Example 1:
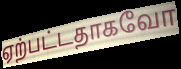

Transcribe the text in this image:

ஏற்பட்டதாகவோ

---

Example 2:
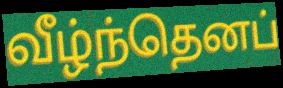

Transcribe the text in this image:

வீழ்ந்தெனப்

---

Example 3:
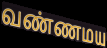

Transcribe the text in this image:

வண்ணமய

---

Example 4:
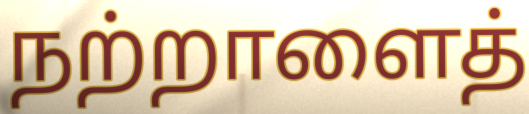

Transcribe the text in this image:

நற்றாளைத்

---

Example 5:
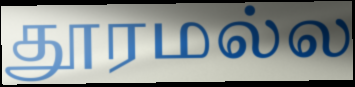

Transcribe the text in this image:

தூரமல்ல